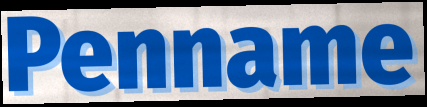
Penname